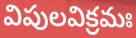
విపులవిక్రమః